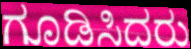
ಗೂಡಿಸಿದರು